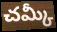
చమ్కీ